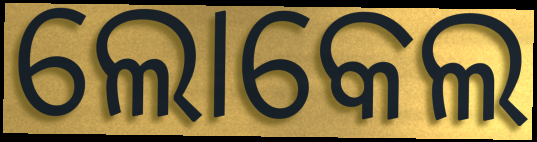
ଲୋକେଲ